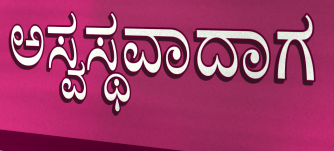
ಅಸ್ವಸ್ಥವಾದಾಗ